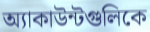
অ্যাকাউন্টগুলিকে